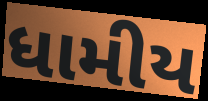
ધામીય